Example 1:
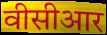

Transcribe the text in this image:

वीसीआर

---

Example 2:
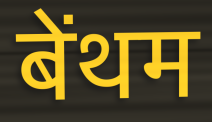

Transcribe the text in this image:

बेंथम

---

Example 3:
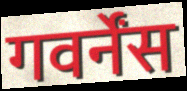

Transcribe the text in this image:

गवर्नेंस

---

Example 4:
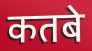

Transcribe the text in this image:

कतबे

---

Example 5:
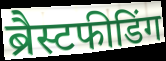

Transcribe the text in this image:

ब्रैस्टफीडिंग